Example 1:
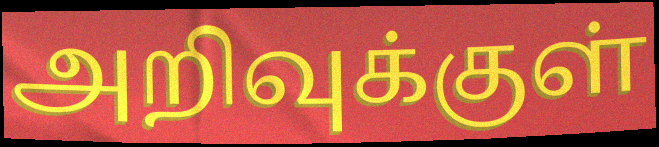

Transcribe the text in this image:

அறிவுக்குள்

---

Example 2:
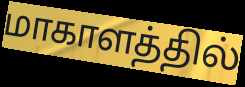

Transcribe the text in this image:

மாகாளத்தில்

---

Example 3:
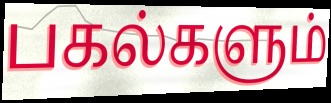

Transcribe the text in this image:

பகல்களும்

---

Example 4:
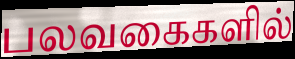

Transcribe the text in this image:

பலவகைகளில்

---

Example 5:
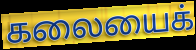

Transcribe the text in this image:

கலையைக்